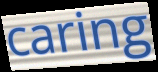
caring